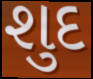
શુદ